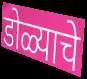
डोळ्याचे